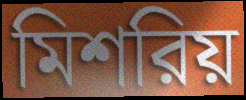
মিশরিয়